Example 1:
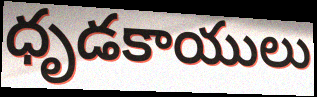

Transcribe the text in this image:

ధృడకాయులు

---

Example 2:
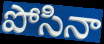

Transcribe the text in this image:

పోసినా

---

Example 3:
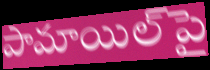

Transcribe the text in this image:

పామాయిల్‌పై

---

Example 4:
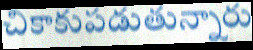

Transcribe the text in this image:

చికాకుపడుతున్నారు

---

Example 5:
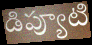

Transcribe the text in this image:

డిప్యూటి